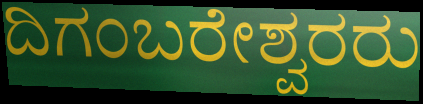
ದಿಗಂಬರೇಶ್ವರರು